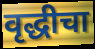
वृद्धीचा